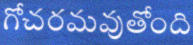
గోచరమవుతోంది